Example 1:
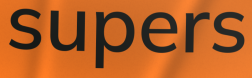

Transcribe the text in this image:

supers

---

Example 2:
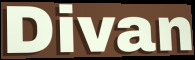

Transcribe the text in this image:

Divan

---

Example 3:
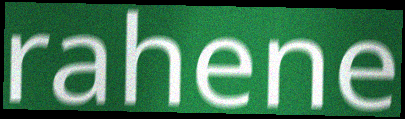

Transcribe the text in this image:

rahene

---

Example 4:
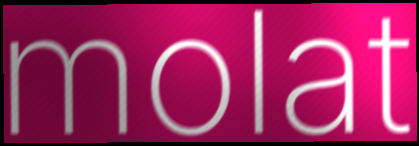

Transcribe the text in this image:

molat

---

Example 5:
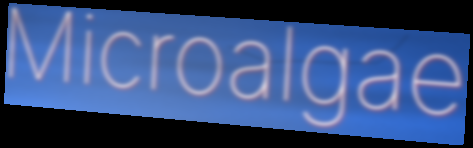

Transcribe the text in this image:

Microalgae